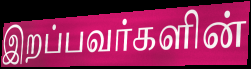
இறப்பவர்களின்